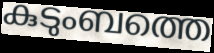
കുടുംബത്തെ